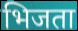
भिजता